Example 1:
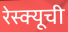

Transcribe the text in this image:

रेस्क्यूची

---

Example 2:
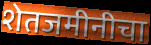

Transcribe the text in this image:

शेतजमीनीचा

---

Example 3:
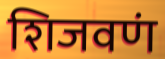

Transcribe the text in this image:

शिजवणं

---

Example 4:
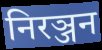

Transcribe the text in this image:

निरञ्जन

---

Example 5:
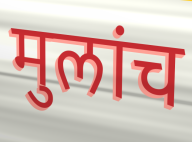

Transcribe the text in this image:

मुलांच